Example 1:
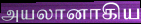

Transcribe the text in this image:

அயலானாகிய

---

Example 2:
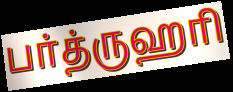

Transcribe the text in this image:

பர்த்ருஹரி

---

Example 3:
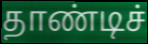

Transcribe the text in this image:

தாண்டிச்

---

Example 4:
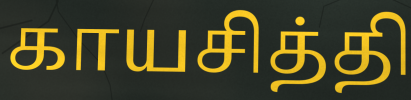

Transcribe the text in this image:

காயசித்தி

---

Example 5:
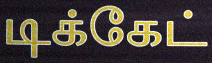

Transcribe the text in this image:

டிக்கேட்